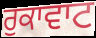
ਰੁਕਾਵਾਟ